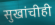
सुखांचीही